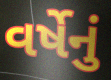
વર્ષેનું